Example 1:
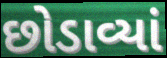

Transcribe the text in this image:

છોડાવ્યાં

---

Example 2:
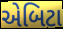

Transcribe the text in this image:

એબિટા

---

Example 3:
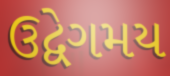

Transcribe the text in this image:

ઉદ્વેગમય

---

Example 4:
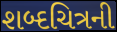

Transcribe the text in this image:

શબ્દચિત્રની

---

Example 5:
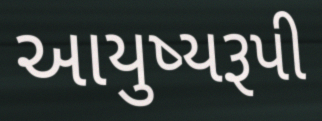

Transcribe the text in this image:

આયુષ્યરૂપી